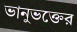
ভানুভক্তের